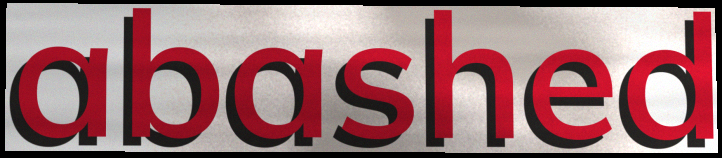
abashed